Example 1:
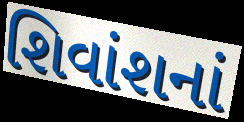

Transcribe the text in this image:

શિવાંશનાં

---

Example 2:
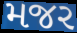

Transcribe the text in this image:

મજર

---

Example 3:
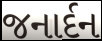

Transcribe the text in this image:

જનાર્દન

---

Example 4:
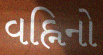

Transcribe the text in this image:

વહ્નિનો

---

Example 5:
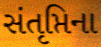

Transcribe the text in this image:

સંતૃપ્તિના